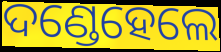
ଦଣ୍ଡେହେଲେ